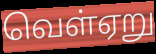
வெள்ஏறு